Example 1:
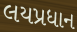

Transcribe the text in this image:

લયપ્રધાન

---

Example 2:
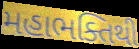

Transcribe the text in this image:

મહાભક્તિથી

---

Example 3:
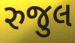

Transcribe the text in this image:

રુજુલ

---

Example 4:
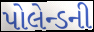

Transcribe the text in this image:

પોલેન્ડની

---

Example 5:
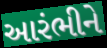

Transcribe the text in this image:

આરંભીને